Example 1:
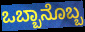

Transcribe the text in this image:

ಒಬ್ಬಾನೊಬ್ಬ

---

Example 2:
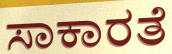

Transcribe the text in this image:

ಸಾಕಾರತೆ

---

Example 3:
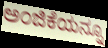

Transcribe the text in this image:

ಅಂಜಿಕೆಯನ್ನೂ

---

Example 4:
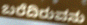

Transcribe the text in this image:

ಬರೆದಿರುವನು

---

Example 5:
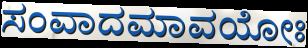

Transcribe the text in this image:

ಸಂವಾದಮಾವಯೋಃ